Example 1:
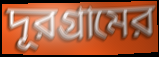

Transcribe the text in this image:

দূরগ্রামের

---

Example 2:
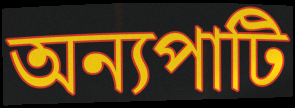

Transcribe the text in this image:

অন্যপাটি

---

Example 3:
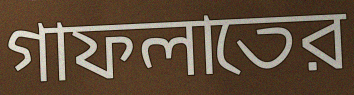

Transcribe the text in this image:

গাফলাতের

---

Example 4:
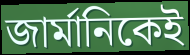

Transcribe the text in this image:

জার্মানিকেই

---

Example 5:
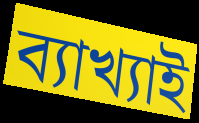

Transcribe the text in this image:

ব্যাখ্যাই